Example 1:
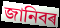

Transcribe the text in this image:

জানিবৰ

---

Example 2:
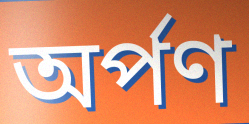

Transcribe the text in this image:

অৰ্পণ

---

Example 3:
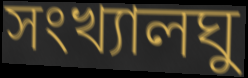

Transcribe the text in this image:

সংখ্যালঘু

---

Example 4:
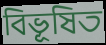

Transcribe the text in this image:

বিভূষিত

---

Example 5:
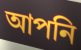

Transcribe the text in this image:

আপনি